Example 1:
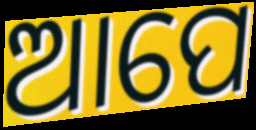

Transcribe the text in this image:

ଆପେ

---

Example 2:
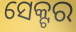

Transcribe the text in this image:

ସେକ୍ଟର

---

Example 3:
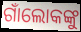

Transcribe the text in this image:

ଗାଁଲୋକଙ୍କୁ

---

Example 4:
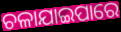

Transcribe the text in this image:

ଚଳାଯାଇପାରେ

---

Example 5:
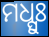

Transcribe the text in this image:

ମଧ୍ସୁଃ